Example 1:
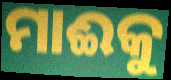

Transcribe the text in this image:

ମାଈକୁ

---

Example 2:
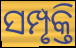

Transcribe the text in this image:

ସମ୍ପୃକ୍ତି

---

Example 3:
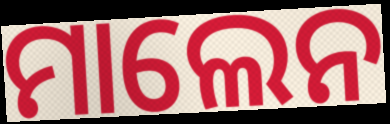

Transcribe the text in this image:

ମାଲେନ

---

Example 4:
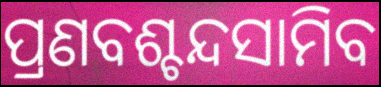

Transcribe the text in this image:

ପ୍ରଣବଶ୍ଚନ୍ଦସାମିବ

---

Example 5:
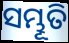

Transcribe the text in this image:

ସମ୍ଭୂତି